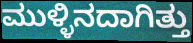
ಮುಳ್ಳಿನದಾಗಿತ್ತು